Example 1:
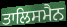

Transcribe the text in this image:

ਤਾਲਿਸਮੈਨ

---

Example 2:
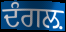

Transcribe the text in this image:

ਦੰਗਲ਼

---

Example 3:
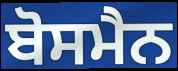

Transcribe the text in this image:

ਬੋਸਮੈਨ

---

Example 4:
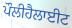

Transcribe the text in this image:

ਪੌਲੀਹੈਲਾਈਟ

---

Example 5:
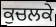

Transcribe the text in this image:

ਕੁਚਲਕੇ